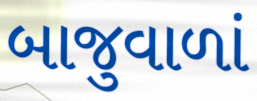
બાજુવાળાં